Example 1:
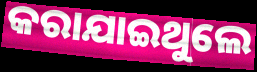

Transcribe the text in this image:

କରାଯାଇଥୁଲେ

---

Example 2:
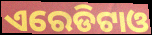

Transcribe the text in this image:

ଏରେଡିଟାଓ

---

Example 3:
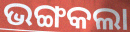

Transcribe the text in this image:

ଭଙ୍ଗକଲା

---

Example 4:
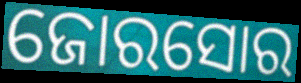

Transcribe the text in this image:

ଜୋରସୋର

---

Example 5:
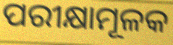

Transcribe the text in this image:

ପରୀକ୍ଷାମୂଳକ